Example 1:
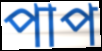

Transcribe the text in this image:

পাপ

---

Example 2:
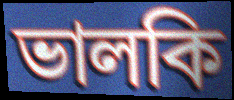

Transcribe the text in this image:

ভালকি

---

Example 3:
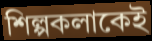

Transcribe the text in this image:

শিল্পকলাকেই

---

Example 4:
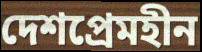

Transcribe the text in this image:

দেশপ্রেমহীন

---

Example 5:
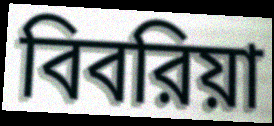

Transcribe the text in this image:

বিবরিয়া